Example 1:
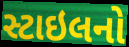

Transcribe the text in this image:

સ્ટાઇલનો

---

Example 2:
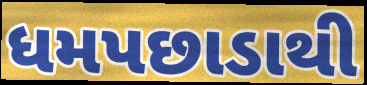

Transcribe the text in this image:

ધમપછાડાથી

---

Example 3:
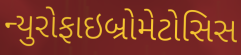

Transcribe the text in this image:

ન્યુરોફાઇબ્રોમેટોસિસ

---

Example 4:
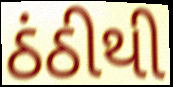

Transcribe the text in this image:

ઠંઠીથી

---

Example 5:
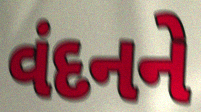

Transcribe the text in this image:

વંદનને